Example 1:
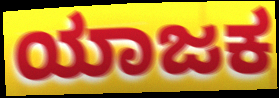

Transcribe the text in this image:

ಯಾಜಕ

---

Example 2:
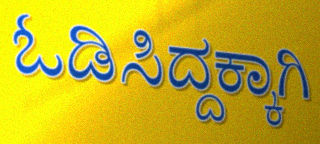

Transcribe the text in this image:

ಓಡಿಸಿದ್ದಕ್ಕಾಗಿ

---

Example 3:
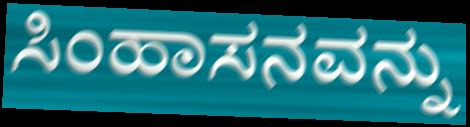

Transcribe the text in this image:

ಸಿಂಹಾಸನವನ್ನು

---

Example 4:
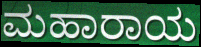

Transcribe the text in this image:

ಮಹಾರಾಯ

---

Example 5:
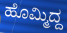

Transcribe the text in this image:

ಹೊಮ್ಮಿದ್ದ